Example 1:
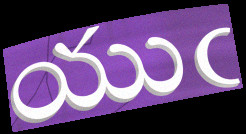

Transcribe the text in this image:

యుఁ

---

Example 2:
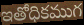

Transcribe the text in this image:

ఇతోధికముగ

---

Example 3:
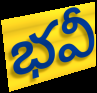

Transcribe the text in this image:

భవీ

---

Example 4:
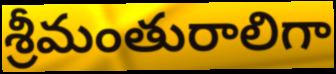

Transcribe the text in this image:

శ్రీమంతురాలిగా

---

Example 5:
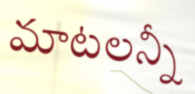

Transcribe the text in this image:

మాటలన్నీ